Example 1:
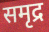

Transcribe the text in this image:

समृद्र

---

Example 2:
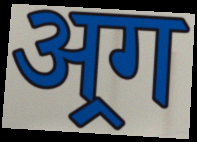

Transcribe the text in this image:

अ्रग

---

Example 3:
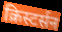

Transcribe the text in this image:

क्रिस्टर्सन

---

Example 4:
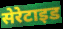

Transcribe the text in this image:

सेरेटाइड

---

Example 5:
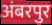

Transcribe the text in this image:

अंबरपुर